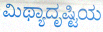
ಮಿಥ್ಯಾದೃಷ್ಟಿಯ